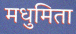
मधुमिता